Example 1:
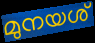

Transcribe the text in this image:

മുനയശ്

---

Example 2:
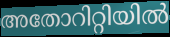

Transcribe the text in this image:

അതോറിറ്റിയിൽ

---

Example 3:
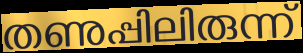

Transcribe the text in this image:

തണുപ്പിലിരുന്ന്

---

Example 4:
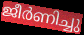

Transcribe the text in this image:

ജീർണിച്ചു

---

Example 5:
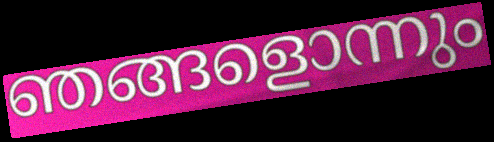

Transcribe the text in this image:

ഞങ്ങളൊന്നും